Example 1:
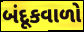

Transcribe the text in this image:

બંદૂકવાળો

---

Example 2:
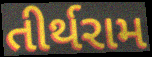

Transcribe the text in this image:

તીર્થરામ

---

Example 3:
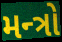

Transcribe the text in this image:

મન્ત્રો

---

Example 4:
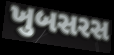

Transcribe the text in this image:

ખુબસરસ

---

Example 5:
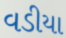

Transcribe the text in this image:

વડીયા